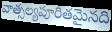
వాత్సల్యపూరితమైనది